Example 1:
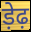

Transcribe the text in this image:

ड़ेढ़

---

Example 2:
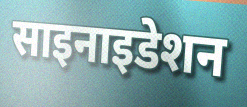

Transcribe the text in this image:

साइनाइडेशन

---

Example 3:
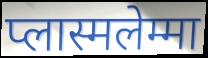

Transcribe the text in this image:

प्लास्मलेम्मा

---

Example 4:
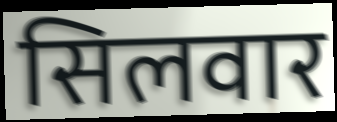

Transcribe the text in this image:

सिलवार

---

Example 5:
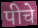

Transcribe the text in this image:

पीचे